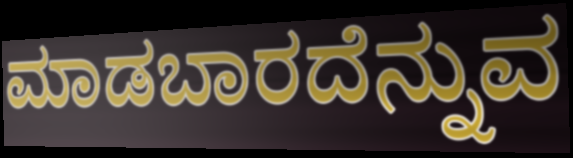
ಮಾಡಬಾರದೆನ್ನುವ